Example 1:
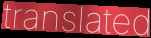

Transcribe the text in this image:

translated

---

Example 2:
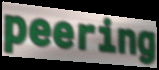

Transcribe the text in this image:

peering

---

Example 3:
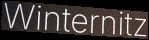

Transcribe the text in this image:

Winternitz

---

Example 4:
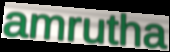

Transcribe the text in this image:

amrutha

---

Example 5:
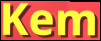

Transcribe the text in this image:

Kem